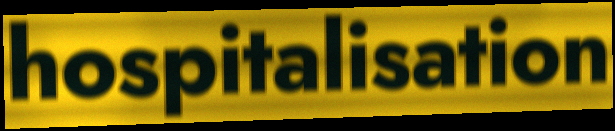
hospitalisation